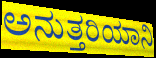
ಅನುತ್ತರಿಯಾನಿ